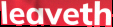
leaveth